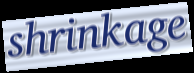
shrinkage